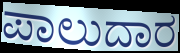
ಪಾಲುದಾರ